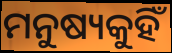
ମନୁଷ୍ୟକୁହିଁ